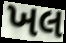
ખલ